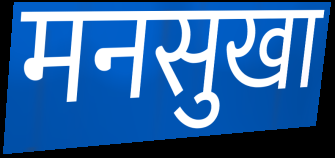
मनसुखा